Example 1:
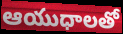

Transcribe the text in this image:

ఆయుధాలతో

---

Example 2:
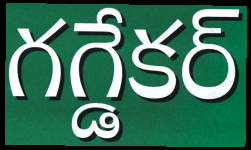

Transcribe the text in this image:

గగ్డేకర్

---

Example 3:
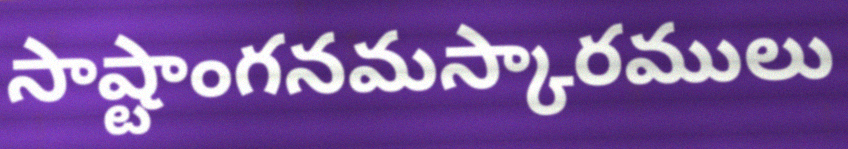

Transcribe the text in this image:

సాష్టాంగనమస్కారములు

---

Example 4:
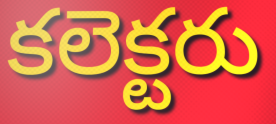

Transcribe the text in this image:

కలెక్టరు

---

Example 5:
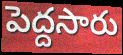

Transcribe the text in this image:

పెద్దసారు